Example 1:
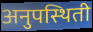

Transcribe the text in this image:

अनुपस्थिती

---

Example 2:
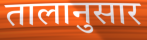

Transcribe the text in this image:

तालानुसार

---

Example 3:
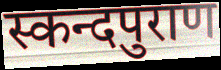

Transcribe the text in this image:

स्कन्दपुराण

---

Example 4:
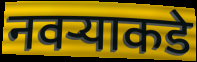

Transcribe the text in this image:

नवऱ्याकडे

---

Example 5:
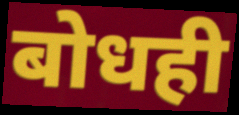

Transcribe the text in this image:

बोधही